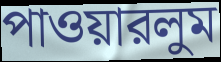
পাওয়ারলুম